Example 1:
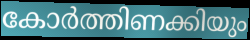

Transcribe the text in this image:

കോർത്തിണക്കിയും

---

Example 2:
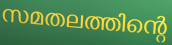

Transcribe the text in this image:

സമതലത്തിന്റെ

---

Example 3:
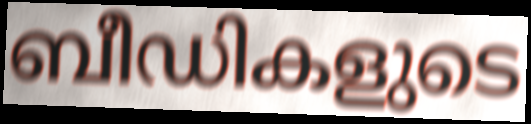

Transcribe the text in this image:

ബീഡികളുടെ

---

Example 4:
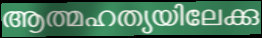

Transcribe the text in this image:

ആത്മഹത്യയിലേക്കു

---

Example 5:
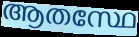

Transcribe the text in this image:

ആതസ്ഥേ